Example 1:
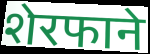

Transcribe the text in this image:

शेरफाने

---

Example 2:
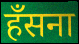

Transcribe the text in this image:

हँसना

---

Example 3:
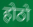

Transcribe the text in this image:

होठो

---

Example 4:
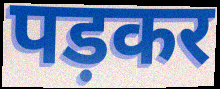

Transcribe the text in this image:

पड़कर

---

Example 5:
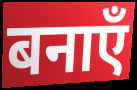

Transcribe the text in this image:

बनाएँ